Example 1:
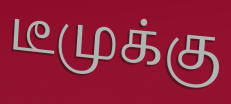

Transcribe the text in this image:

டீமுக்கு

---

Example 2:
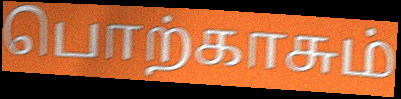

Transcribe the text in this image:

பொற்காசும்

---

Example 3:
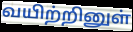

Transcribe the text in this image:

வயிற்றினுள்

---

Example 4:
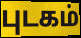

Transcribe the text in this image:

புடகம்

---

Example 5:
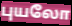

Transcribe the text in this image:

புயலோ